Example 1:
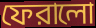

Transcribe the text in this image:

ফেরালো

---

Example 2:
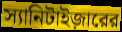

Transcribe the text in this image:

স্যানিটাইজ়ারের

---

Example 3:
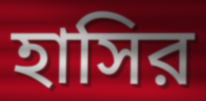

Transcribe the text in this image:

হাসির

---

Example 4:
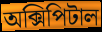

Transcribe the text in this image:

অক্সিপিটাল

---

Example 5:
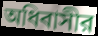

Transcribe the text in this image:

অধিবাসীর